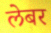
लेबर